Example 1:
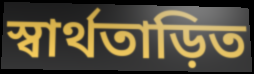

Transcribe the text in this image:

স্বার্থতাড়িত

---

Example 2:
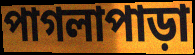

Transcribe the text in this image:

পাগলাপাড়া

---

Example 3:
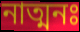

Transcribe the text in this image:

নাত্মনঃ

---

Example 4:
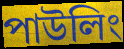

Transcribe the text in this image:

পাউলিং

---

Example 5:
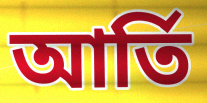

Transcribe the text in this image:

আর্তি